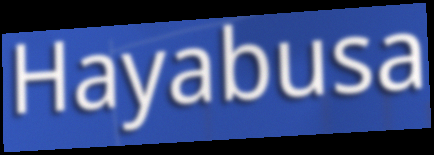
Hayabusa